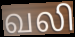
வலி